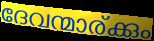
ദേവന്മാര്ക്കും